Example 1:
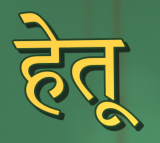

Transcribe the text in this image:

हेतू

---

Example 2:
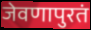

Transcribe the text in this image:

जेवणापुरतं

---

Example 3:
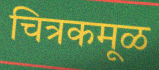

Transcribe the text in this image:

चित्रकमूळ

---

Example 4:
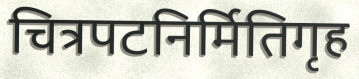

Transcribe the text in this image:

चित्रपटनिर्मितिगृह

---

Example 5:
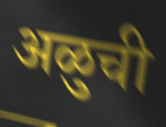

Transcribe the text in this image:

अळुची